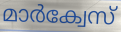
മാർക്വേസ്